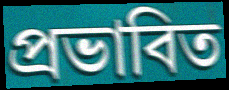
প্রভাবিত